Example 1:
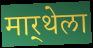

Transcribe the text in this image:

मार्थेला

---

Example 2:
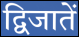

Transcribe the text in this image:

द्विजातें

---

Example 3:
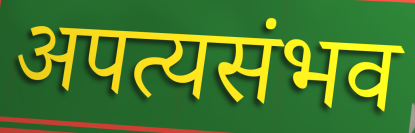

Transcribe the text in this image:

अपत्यसंभव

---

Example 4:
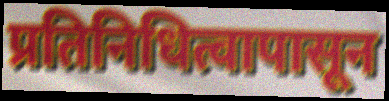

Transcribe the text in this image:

प्रतिनिधित्वापासून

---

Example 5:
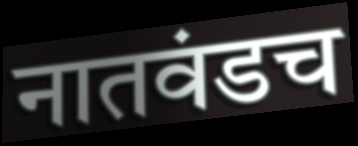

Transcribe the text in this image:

नातवंडच